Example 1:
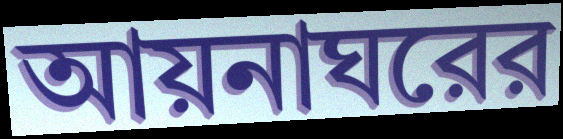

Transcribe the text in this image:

আয়নাঘরের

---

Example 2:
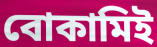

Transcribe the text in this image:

বোকামিই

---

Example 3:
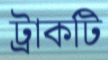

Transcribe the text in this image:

ট্রাকটি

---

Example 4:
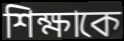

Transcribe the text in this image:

শিক্ষাকে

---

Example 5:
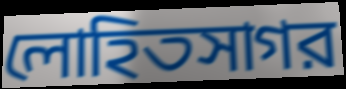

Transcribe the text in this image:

লোহিতসাগর